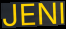
JENI